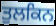
ਤੁਲਕਿਨ